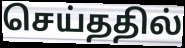
செய்ததில்